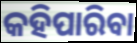
କହିପାରିବା